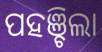
ପହଞ୍ଚିଲା